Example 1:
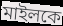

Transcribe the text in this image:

মাইলকে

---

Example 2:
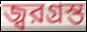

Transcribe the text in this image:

জ্বরগ্রস্ত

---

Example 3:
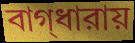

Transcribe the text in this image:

বাগ্‌ধারায়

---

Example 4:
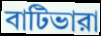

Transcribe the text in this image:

বাটিভারা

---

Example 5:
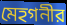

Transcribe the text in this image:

মেহগনীর